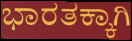
ಭಾರತಕ್ಕಾಗಿ